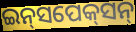
ଇନ୍‌ସପେକ୍‌ସନ୍